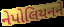
નેપોલિયનને